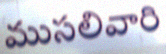
ముసలివారి